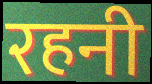
रहनी